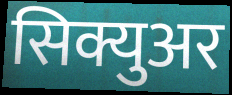
सिक्युअर